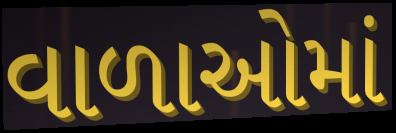
વાળાઓમાં